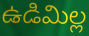
ఉడిమిల్ల